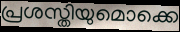
പ്രശസ്തിയുമൊക്കെ